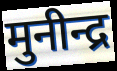
मुनीन्द्र